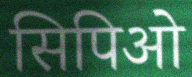
सिपिओ